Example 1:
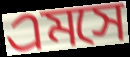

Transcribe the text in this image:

এমসে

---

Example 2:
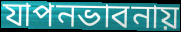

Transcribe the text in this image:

যাপনভাবনায়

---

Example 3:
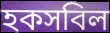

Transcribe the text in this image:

হকসবিল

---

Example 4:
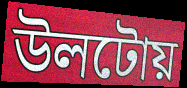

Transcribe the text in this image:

উলটোয়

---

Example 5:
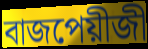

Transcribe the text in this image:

বাজপেয়ীজী